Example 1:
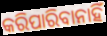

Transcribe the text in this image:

କରିପାରିବାନାହିଁ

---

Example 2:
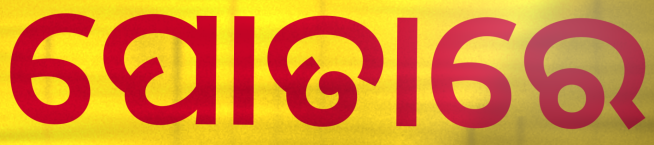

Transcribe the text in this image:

ପୋତାରେ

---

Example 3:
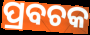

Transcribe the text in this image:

ପ୍ରବଚକ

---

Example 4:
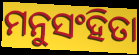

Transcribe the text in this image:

ମନୁସଂହିତା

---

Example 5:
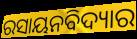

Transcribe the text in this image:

ରସାୟନବିଦ୍ୟାର